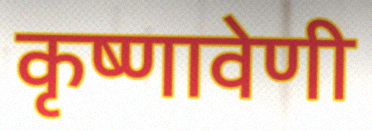
कृष्णावेणी